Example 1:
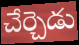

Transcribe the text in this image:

చేర్చెడు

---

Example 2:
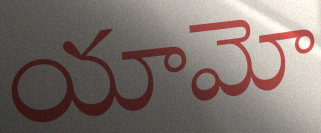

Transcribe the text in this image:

యామో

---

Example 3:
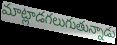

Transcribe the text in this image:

మాట్లాడగలుగుతున్నాడు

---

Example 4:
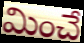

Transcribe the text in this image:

మించే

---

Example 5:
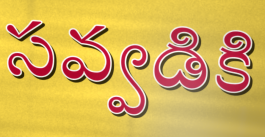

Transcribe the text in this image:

సవ్వడికి